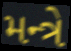
મન્ત્રે